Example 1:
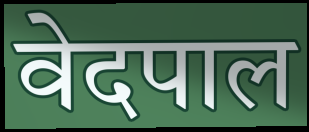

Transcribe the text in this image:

वेदपाल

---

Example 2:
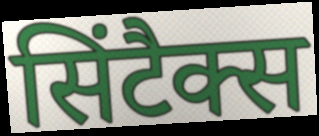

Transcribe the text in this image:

सिंटैक्स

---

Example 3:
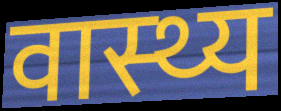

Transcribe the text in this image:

वास्थ्य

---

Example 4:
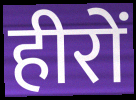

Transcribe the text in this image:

हीरों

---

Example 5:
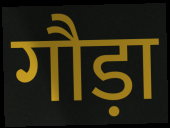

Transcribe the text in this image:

गौड़ा